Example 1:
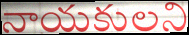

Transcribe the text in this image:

నాయకులని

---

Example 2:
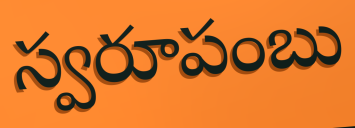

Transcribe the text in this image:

స్వరూపంబు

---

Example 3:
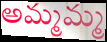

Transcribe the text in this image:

అమ్మమ్మ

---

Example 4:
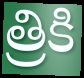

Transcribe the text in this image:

త్రికి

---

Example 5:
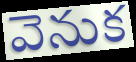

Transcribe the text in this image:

వెనుక